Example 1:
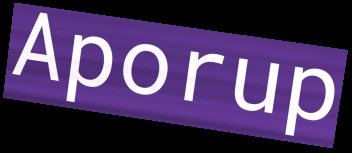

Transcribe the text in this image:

Aporup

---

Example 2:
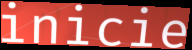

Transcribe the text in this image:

inicie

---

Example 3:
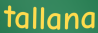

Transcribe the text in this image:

tallana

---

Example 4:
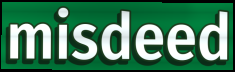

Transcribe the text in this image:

misdeed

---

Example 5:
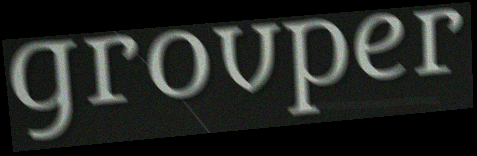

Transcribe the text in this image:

grouper